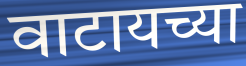
वाटायच्या